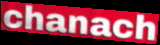
chanach